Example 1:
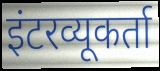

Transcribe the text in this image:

इंटरव्यूकर्ता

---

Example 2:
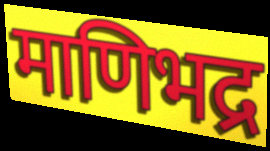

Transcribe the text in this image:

माणिभद्र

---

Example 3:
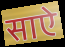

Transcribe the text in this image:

साऐ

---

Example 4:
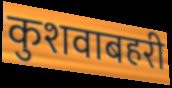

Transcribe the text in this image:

कुशवाबहरी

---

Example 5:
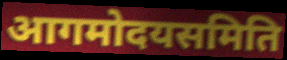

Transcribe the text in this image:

आगमोदयसमिति